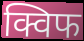
क्विफ